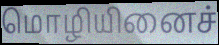
மொழியினைச்